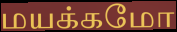
மயக்கமோ